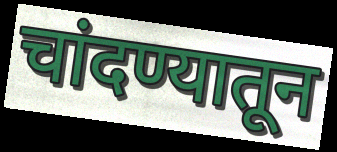
चांदण्यातून